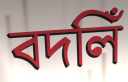
বদলিঁ